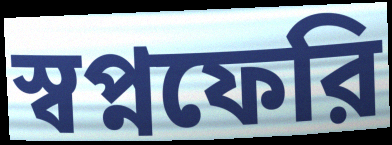
স্বপ্নফেরি